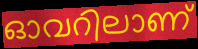
ഓവറിലാണ്